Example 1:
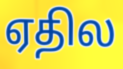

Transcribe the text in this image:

ஏதில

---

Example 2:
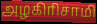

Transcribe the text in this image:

அழகிரிசாமி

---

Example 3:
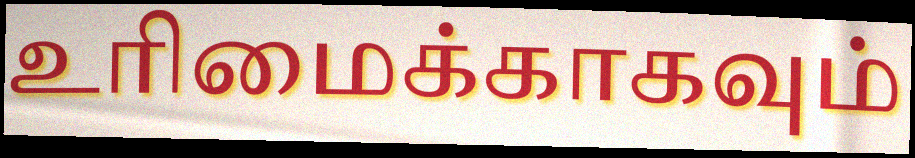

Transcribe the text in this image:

உரிமைக்காகவும்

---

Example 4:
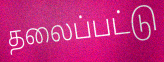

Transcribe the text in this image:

தலைப்பட்டு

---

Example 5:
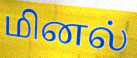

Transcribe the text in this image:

மினல்